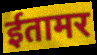
ईतामर